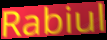
Rabiul